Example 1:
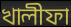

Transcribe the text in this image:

খালীফা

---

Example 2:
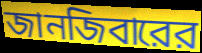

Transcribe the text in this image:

জানজিবারের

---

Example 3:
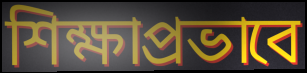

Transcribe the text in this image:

শিক্ষাপ্রভাবে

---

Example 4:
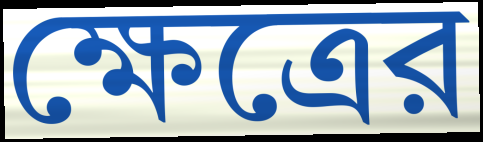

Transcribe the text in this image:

ক্ষেত্রের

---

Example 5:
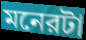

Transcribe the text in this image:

মনেরটা